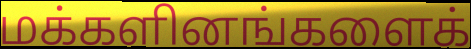
மக்களினங்களைக்